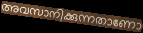
അവസാനിക്കുന്നതാണോ